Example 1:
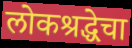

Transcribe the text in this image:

लोकश्रद्धेचा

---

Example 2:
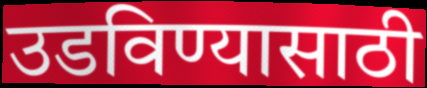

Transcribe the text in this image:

उडविण्यासाठी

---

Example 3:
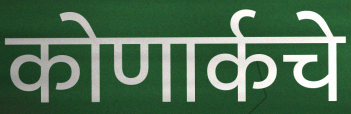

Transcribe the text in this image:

कोणार्कचे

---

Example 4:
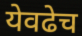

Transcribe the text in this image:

येवढेच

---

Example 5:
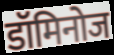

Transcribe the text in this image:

डॉमिनोज